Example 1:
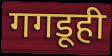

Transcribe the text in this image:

गगडूही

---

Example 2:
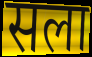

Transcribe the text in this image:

सला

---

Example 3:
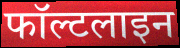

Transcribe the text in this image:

फॉल्टलाइन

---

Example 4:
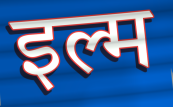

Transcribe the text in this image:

इल्म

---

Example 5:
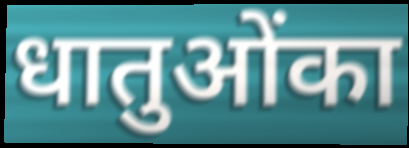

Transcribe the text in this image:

धातुओंका